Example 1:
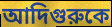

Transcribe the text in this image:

আদিগুরুকে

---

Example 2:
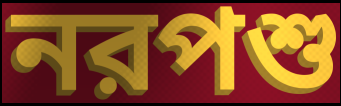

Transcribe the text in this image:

নরপশু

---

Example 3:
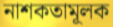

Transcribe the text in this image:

নাশকতামূলক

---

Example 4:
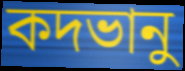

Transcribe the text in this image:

কদভানু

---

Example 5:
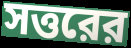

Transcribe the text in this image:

সত্তরের